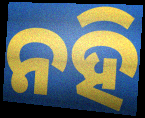
ନହି